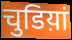
चुडिय़ां